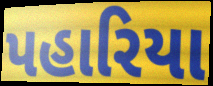
પહારિયા